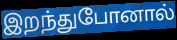
இறந்துபோனால்